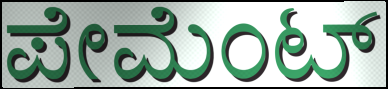
ಪೇಮೆಂಟ್